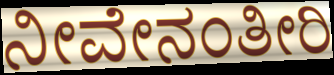
ನೀವೇನಂತೀರಿ